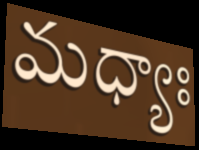
మధ్యాః